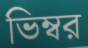
ভিম্বর